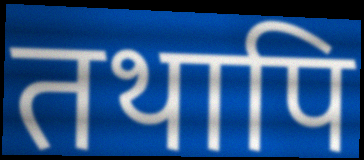
तथापि